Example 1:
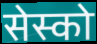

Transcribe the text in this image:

सेस्को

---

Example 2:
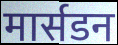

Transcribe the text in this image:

मार्सडन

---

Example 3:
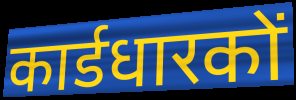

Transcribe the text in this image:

कार्डधारकों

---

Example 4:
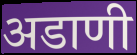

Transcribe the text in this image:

अडाणी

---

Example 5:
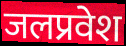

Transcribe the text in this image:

जलप्रवेश